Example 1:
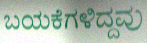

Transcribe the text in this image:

ಬಯಕೆಗಳಿದ್ದವು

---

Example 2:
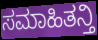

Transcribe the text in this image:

ಸಮಾಹಿತನ್ತಿ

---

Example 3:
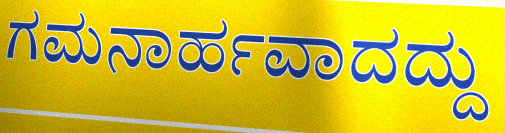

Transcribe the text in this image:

ಗಮನಾರ್ಹವಾದದ್ದು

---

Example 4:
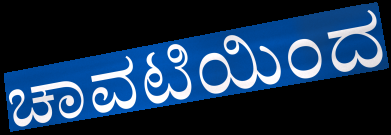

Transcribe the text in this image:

ಚಾವಟಿಯಿಂದ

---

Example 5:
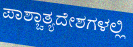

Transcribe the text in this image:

ಪಾಶ್ಚಾತ್ಯದೇಶಗಳಲ್ಲಿ